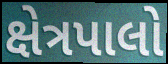
ક્ષેત્રપાલો